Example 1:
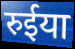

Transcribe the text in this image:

रुईया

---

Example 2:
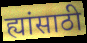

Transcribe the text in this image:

ह्यांसाठी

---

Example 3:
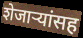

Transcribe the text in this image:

शेजाऱ्यांसह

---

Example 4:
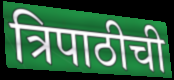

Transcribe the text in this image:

त्रिपाठीची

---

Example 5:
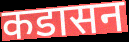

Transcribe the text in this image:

कडासन